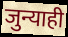
जुन्याही